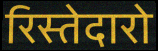
रिस्तेदारो